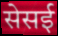
सेसई